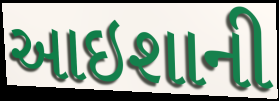
આઇશાની